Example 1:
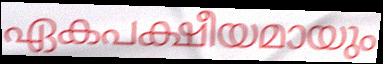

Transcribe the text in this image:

ഏകപക്ഷീയമായും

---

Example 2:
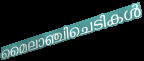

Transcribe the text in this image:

മൈലാഞ്ചിചെടികൾ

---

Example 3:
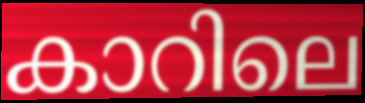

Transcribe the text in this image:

കാറിലെ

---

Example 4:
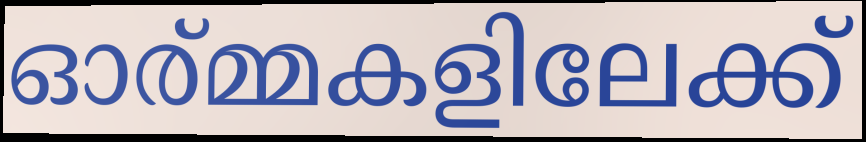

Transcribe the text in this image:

ഓര്മ്മകളിലേക്ക്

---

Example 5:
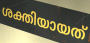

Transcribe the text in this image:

ശക്തിയായത്